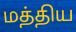
மத்திய